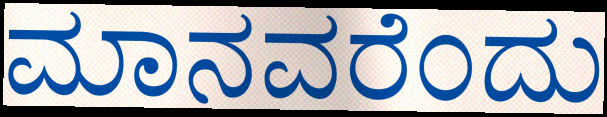
ಮಾನವರೆಂದು